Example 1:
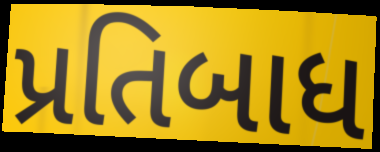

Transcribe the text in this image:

પ્રતિબાધ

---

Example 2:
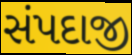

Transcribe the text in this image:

સંપદાજી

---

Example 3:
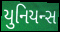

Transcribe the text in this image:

યુનિયન્સ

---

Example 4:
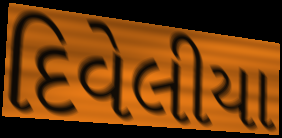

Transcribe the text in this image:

દિવેલીયા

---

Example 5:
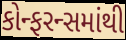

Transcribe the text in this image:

કોન્ફરન્સમાંથી